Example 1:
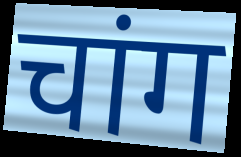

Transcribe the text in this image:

चांग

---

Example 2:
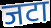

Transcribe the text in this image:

जटा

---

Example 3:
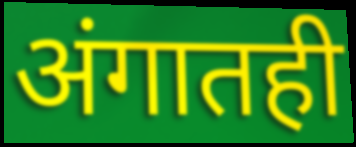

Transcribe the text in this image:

अंगातही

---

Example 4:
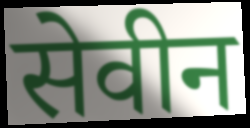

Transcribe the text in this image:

सेवीन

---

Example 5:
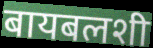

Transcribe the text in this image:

बायबलशी